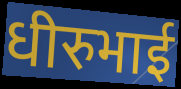
धीरुभाई